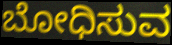
ಬೋಧಿಸುವ